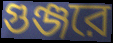
গুঞ্জরে